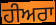
ਹੀਅਰਾ